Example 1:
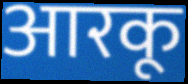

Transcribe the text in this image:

आरकू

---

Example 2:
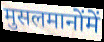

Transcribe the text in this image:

मुसलमानोंमें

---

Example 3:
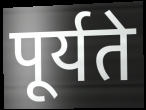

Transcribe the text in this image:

पूर्यते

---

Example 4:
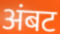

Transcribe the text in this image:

अंबट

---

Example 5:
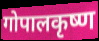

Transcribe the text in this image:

गोपालकृष्ण